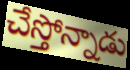
చేస్తోన్నాడు